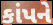
કાંપને